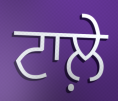
ਟਾਲ਼ੇ